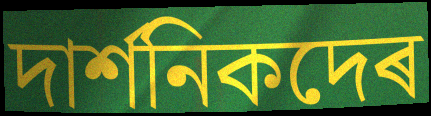
দাৰ্শনিকদেৰ